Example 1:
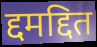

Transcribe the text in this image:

द्दमद्दित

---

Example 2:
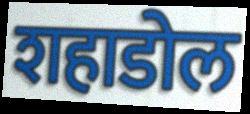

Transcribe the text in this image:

शहाडोल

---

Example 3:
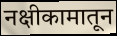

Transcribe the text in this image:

नक्षीकामातून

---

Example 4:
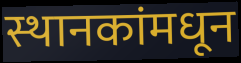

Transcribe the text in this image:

स्थानकांमधून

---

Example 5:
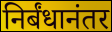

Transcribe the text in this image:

निर्बंधानंतर